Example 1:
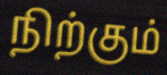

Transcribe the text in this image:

நிற்கும்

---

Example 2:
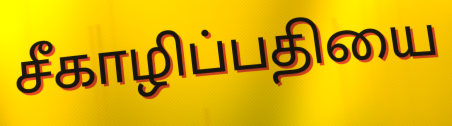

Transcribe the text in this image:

சீகாழிப்பதியை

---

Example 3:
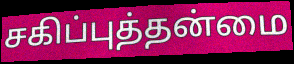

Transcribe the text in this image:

சகிப்புத்தன்மை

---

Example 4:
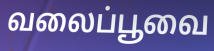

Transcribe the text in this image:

வலைப்பூவை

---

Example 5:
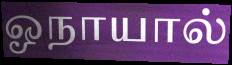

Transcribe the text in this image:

ஓநாயால்